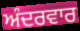
ਅੰਦਰਵਾਰ